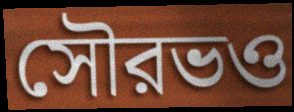
সৌরভও